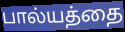
பால்யத்தை